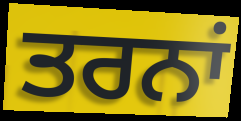
ਤਰਨਾਂ